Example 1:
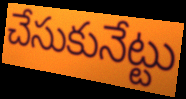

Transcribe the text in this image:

చేసుకునేట్టు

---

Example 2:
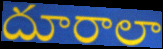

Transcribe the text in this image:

దూరాలా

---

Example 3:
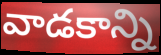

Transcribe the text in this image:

వాడకాన్ని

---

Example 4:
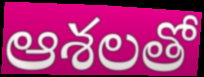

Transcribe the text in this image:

ఆశలతో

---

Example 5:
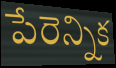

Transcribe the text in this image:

పేరెన్నిక